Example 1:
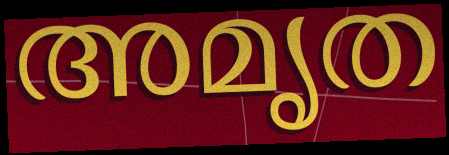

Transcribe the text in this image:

അമൃത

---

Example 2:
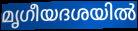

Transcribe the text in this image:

മൃഗീയദശയിൽ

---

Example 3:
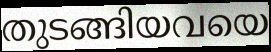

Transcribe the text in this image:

തുടങ്ങിയവയെ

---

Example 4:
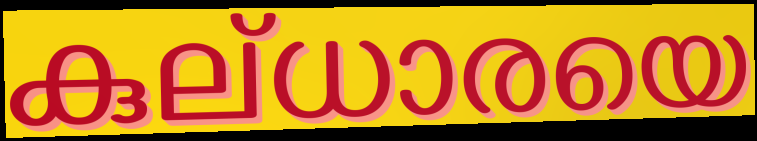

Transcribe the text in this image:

കുല്ധാരയെ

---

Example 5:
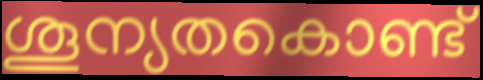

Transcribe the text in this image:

ശൂന്യതകൊണ്ട്